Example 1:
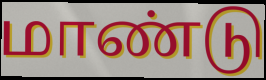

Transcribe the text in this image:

மாண்டு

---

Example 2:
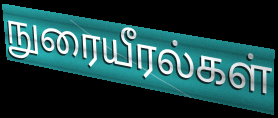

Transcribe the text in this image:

நுரையீரல்கள்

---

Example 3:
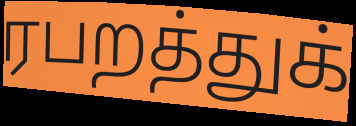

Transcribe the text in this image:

ரபறத்துக்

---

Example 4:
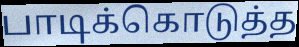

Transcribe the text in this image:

பாடிக்கொடுத்த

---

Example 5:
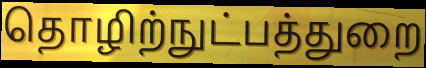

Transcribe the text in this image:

தொழிற்நுட்பத்துறை